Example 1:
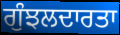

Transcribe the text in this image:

ਗੁੰਝਲਦਾਰਤਾ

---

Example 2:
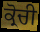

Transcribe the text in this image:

ਕ੍ਰੋਚੀ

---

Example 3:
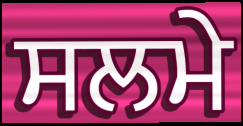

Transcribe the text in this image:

ਸਲਮੇ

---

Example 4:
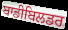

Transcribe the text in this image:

ਬਾਡੀਬਿਲਡਰ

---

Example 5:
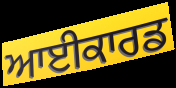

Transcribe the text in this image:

ਆਈਕਾਰਡ